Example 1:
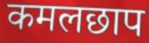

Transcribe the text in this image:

कमलछाप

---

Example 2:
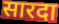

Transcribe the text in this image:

सारदा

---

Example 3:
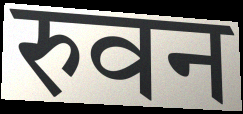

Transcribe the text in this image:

रुवन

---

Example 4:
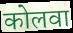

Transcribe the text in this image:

कोलवा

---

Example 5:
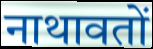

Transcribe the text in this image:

नाथावतों